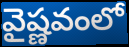
వైష్ణవంలో